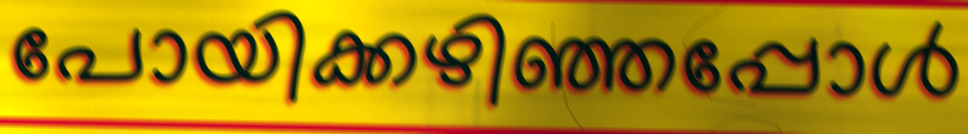
പോയിക്കഴിഞ്ഞപ്പോൾ